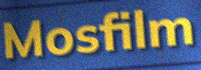
Mosfilm